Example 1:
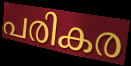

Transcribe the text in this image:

പരികര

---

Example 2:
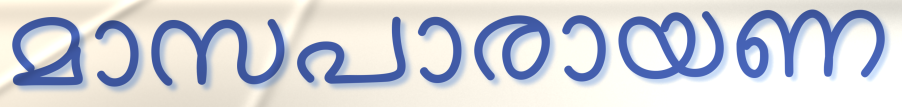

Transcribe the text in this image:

മാസപാരായണ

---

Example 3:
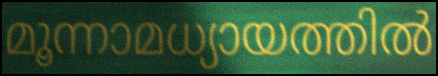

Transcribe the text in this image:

മൂന്നാമധ്യായത്തിൽ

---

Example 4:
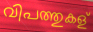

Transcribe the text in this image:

വിപത്തുകള്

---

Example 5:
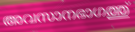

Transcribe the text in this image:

അവസാനഭാഗത്തു്